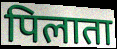
पिलाता